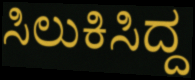
ಸಿಲುಕಿಸಿದ್ದ